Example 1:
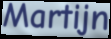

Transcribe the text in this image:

Martijn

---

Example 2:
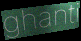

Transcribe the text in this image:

ghanti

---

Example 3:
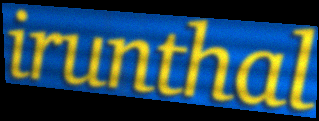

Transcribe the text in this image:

irunthal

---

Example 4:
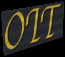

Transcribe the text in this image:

OIT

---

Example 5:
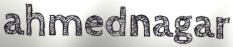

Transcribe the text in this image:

ahmednagar